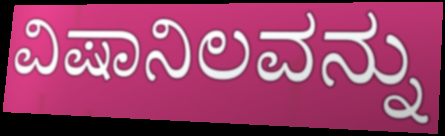
ವಿಷಾನಿಲವನ್ನು